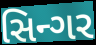
સિન્ગર